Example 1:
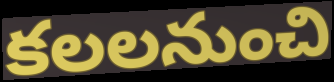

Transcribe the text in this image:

కలలనుంచి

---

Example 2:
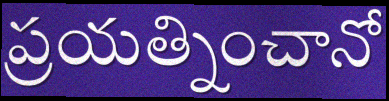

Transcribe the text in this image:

ప్రయత్నించానో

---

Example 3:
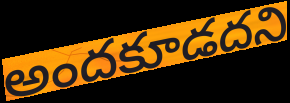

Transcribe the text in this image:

అందకూడదని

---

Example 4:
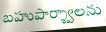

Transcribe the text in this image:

బహుపార్శ్వాలను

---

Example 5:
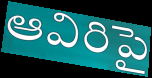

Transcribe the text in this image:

ఆవిరిపై